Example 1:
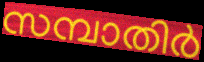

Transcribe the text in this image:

സമ്പാതിർ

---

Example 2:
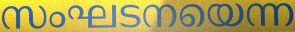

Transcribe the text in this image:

സംഘടനയെന്ന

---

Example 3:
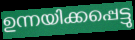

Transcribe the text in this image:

ഉന്നയിക്കപ്പെട്ടു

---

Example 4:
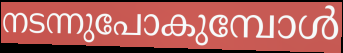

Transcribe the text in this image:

നടന്നുപോകുമ്പോൾ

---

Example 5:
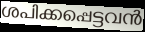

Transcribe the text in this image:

ശപിക്കപ്പെട്ടവൻ